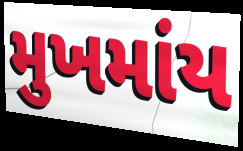
મુખમાંય